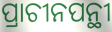
ପ୍ରାଚୀନପନ୍ଥୀ